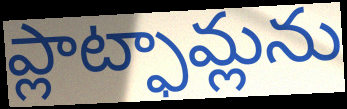
ప్లాట్ఫామ్లను